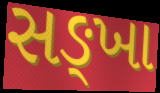
સઙ્ખા